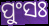
ପୁଂସଃ